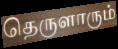
தெருளாரும்